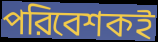
পরিবেশকই